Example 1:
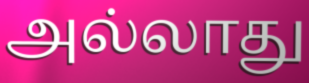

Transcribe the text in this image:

அல்லாது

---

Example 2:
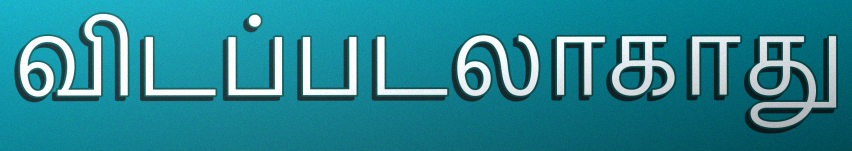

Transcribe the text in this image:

விடப்படலாகாது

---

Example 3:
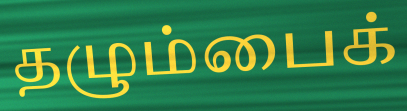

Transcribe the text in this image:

தழும்பைக்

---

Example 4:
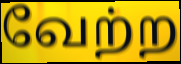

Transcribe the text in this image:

வேற்ற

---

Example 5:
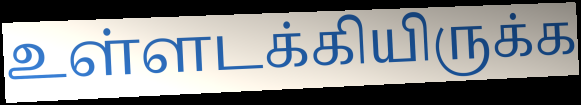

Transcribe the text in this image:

உள்ளடக்கியிருக்க